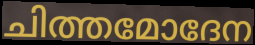
ചിത്തമോദേന